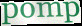
pomp